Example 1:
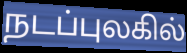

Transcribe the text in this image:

நடப்புலகில்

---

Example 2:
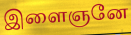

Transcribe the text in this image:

இளைஞனே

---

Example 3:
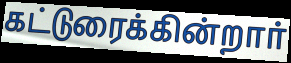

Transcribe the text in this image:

கட்டுரைக்கின்றார்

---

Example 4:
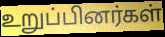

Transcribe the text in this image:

உறுப்பினர்கள்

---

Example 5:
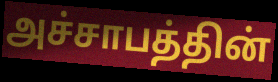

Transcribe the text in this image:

அச்சாபத்தின்